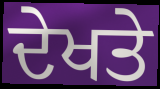
ਦੇਖਤੇ